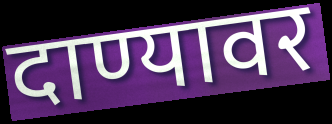
दाण्यावर